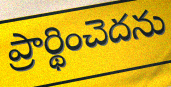
ప్రార్థించెదను